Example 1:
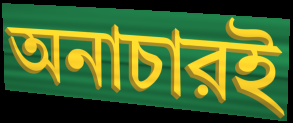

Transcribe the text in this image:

অনাচারই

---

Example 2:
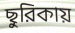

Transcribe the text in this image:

ছুরিকায়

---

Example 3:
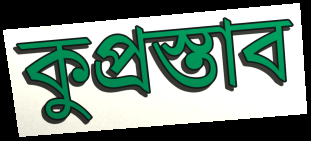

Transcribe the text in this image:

কুপ্রস্তাব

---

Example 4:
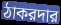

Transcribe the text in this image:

ঠাকরদার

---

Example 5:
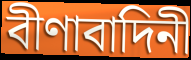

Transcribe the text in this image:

বীণাবাদিনী